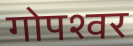
गोपश्वर